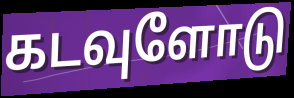
கடவுளோடு